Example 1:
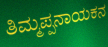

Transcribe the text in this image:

ತಿಮ್ಮಪ್ಪನಾಯಕನ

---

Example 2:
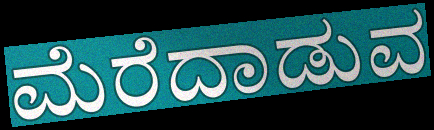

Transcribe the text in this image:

ಮೆರೆದಾಡುವ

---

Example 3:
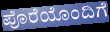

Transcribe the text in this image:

ಪೊರೆಯೊಂದಿಗೆ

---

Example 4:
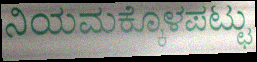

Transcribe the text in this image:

ನಿಯಮಕ್ಕೊಳಪಟ್ಟು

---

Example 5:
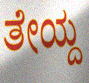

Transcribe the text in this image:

ತೇಯ್ದ